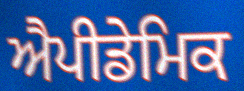
ਐਪੀਡੇਮਿਕ